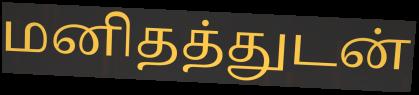
மனிதத்துடன்